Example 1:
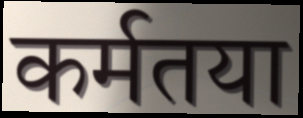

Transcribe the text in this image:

कर्मतया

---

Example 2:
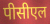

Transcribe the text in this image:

पीसीएल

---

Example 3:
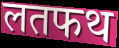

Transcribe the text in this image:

लतफथ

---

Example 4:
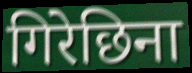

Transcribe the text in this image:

गिरेछिना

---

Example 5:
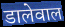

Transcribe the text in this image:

डालेवाल